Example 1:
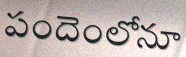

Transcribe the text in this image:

పందెంలోనూ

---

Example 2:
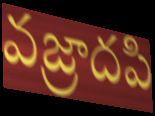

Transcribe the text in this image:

వజ్రాదపి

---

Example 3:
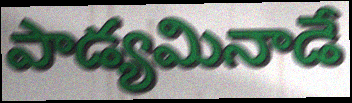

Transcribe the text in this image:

పాడ్యమినాడే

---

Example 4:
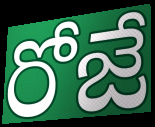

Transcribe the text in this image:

రోజే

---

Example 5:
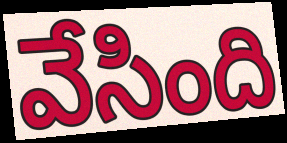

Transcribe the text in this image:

వేసింది